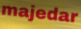
majedar